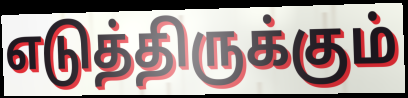
எடுத்திருக்கும்